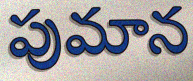
పుమాన